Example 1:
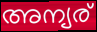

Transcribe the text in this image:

അന്യര്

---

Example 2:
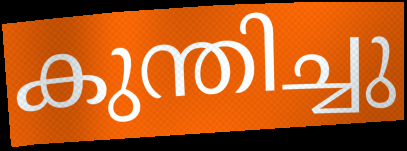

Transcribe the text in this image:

കുന്തിച്ചു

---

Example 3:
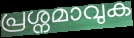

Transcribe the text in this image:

പ്രശ്നമാവുക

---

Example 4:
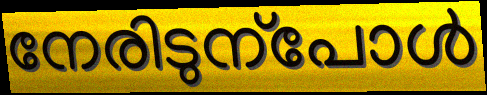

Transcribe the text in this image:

നേരിടുന്പോൾ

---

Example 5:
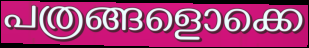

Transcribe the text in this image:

പത്രങ്ങളൊക്കെ